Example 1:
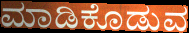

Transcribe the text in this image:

ಮಾಡಿಕೊಡುವ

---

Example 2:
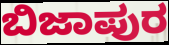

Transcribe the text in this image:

ಬಿಜಾಪುರ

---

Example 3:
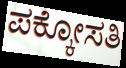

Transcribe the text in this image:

ಪಕ್ಕೋಸತಿ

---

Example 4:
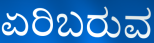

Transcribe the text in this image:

ಏರಿಬರುವ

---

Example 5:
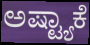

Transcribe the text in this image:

ಅಷ್ಟ್ಯಾಕೆ